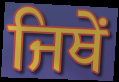
ਜਿਥੇਂ